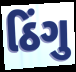
ઠિંગુ